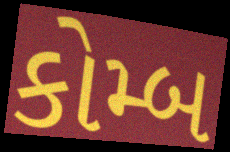
કોમ્બ